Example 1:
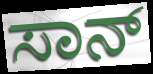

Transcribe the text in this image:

ಸಾನ್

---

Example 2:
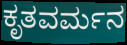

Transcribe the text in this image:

ಕೃತವರ್ಮನ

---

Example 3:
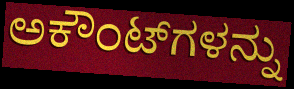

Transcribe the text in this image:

ಅಕೌಂಟ್‌ಗಳನ್ನು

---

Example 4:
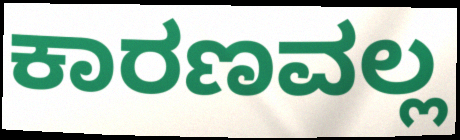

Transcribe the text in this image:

ಕಾರಣವಲ್ಲ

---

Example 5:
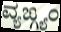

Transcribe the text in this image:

ವ್ಯಙ್ಗ್ಯಂ